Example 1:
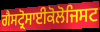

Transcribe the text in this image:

ਗੈਸਟ੍ਰੋਸਾਈਕੋਲੋਜਿਸਟ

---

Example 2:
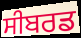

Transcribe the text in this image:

ਸੀਬਰਡ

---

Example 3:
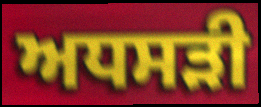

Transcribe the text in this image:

ਅਧਸੜੀ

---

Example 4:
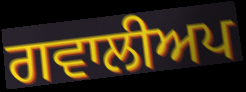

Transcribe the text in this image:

ਗਵਾਲੀਅਪ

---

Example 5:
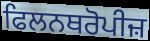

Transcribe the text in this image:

ਫਿਲਨਥਰੋਪੀਜ਼